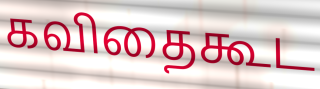
கவிதைகூட